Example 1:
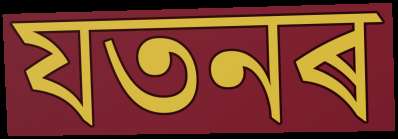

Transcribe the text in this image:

যতনৰ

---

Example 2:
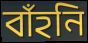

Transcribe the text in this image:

বাঁহনি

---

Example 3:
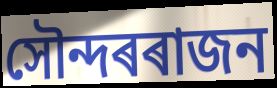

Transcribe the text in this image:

সৌন্দৰৰাজন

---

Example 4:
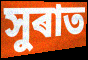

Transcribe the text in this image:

সুৰাত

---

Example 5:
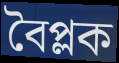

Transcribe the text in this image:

বৈপ্লক